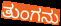
ತುಂಗನು